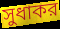
সুধাকর